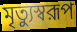
মৃত্যুস্বরূপ